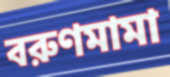
বরুণমামা